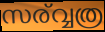
സര്വ്വത്ര